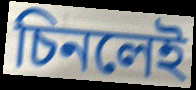
চিনলেই